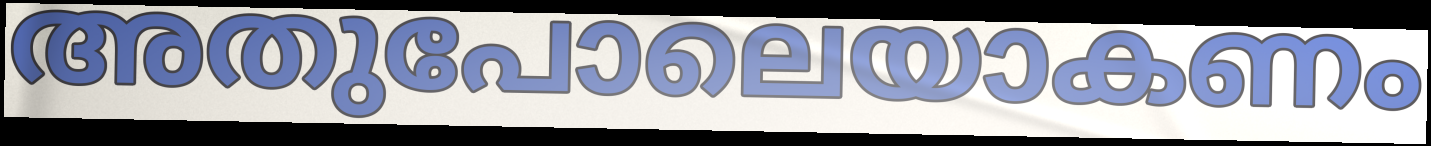
അതുപോലെയാകണം